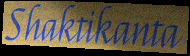
Shaktikanta